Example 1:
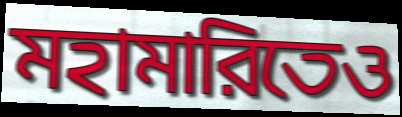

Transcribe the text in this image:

মহামারিতেও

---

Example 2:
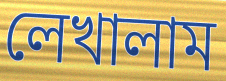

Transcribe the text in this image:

লেখালাম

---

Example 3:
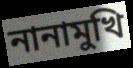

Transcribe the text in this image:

নানামুখি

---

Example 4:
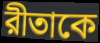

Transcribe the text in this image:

রীতাকে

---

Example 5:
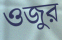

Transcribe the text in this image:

ওজুর